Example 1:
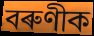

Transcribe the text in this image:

বৰুণীক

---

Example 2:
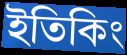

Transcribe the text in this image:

ইতিকিং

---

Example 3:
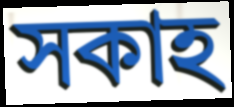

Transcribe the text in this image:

সকাহ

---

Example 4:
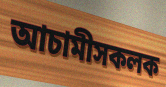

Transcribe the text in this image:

আচামীসকলক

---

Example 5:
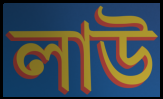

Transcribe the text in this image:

লাউ